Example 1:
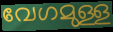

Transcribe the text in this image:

വേഗമുള്ള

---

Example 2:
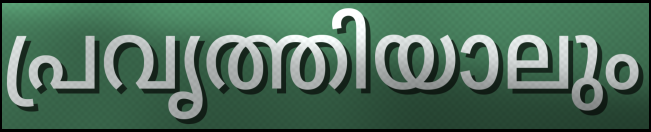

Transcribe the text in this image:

പ്രവൃത്തിയാലും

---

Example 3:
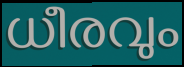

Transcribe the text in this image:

ധീരവും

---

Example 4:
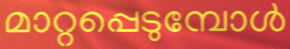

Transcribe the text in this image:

മാറ്റപ്പെടുമ്പോൾ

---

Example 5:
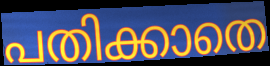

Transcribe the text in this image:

പതിക്കാതെ